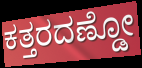
ಕತ್ತರದಣ್ಡೋ